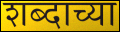
शब्दाच्या